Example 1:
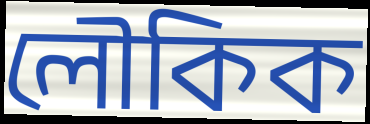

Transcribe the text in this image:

লৌকিক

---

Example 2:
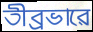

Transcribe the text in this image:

তীব্ৰভাৱে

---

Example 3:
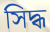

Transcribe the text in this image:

সিদ্ধ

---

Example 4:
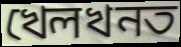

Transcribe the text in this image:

খেলখনত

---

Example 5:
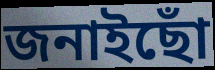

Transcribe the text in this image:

জনাইছোঁ